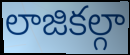
లాజికల్గా